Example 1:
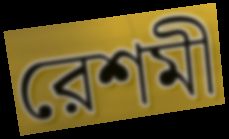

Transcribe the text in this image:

রেশমী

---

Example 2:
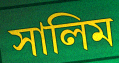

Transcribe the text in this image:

সালিম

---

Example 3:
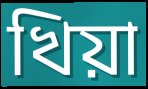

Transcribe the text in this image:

খিয়া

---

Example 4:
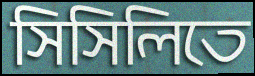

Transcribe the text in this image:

সিসিলিতে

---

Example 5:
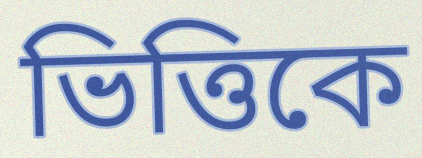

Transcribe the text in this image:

ভিত্তিকে